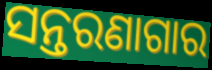
ସନ୍ତରଣାଗାର